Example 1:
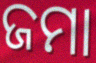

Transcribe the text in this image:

ଜମା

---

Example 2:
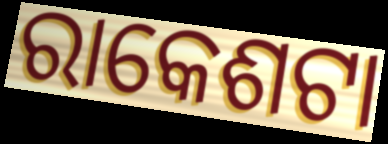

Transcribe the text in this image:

ରାକେଶଟା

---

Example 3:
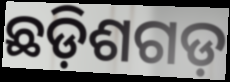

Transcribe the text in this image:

ଛଡ଼ିଶଗଡ଼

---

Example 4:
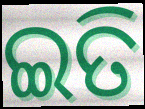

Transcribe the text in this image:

ଇତି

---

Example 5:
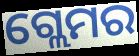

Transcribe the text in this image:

ଗ୍ଲେମର